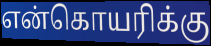
என்கொயரிக்கு